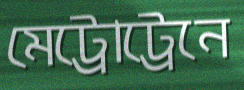
মেট্রোট্রেনে